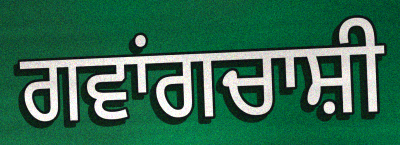
ਗਵਾਂਗਚਾਸ਼ੀ